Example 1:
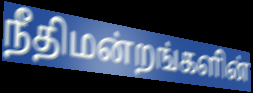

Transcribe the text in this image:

நீதிமன்றங்களின்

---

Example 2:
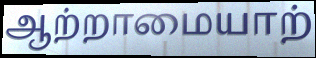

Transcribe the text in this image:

ஆற்றாமையாற்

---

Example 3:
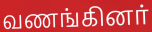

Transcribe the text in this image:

வணங்கினர்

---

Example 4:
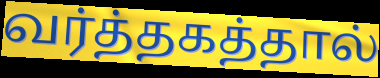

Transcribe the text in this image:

வர்த்தகத்தால்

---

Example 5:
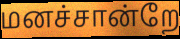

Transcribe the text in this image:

மனச்சான்றே